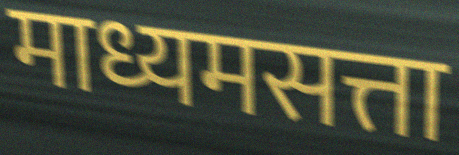
माध्यमसत्ता